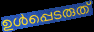
ഉൾപ്പെടരുത്